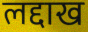
लद्दाख